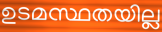
ഉടമസ്ഥതയില്ല